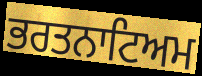
ਭਰਤਨਾਟਿਅਮ